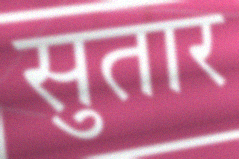
सुतार